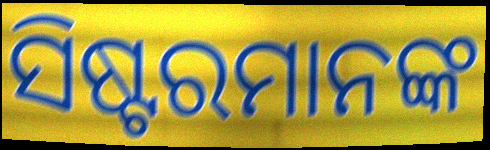
ସିଷ୍ଟରମାନଙ୍କ